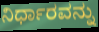
ನಿರ್ಧಾರವನ್ನು